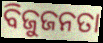
ବିଜୁଜନତା